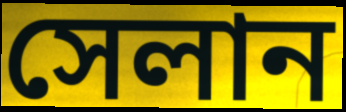
সেলান